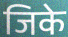
जिके